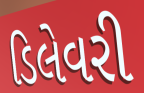
ડિલેવરી